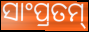
ସାଂପ୍ରତମ୍